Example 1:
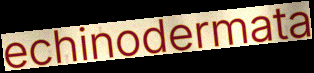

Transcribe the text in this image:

echinodermata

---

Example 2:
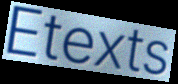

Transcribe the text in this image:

Etexts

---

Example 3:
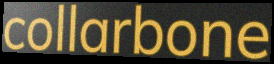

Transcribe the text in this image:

collarbone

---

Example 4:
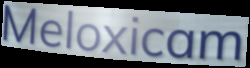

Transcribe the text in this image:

Meloxicam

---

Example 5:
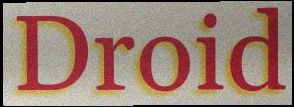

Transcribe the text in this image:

Droid